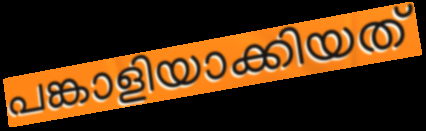
പങ്കാളിയാക്കിയത്